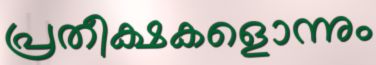
പ്രതീക്ഷകളൊന്നും